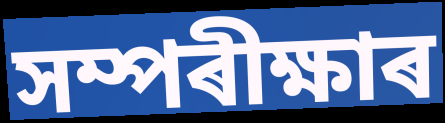
সম্পৰীক্ষাৰ